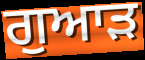
ਗੁਆੜ